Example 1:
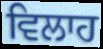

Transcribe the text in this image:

ਵਿਲਾਹ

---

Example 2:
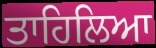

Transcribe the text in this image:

ਤਾਹਿਲਿਆ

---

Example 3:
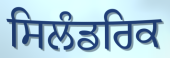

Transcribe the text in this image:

ਸਿਲੰਡਰਿਕ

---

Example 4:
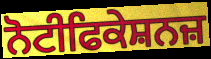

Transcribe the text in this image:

ਨੋਟੀਫਿਕੇਸ਼ਨਜ਼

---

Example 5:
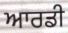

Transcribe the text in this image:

ਆਰਡੀ